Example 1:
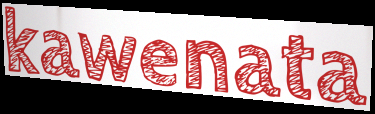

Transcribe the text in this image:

kawenata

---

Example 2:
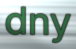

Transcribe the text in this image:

dny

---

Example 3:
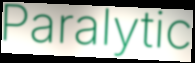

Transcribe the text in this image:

Paralytic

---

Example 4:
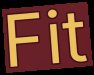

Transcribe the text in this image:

Fit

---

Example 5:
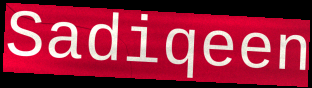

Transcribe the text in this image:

Sadiqeen